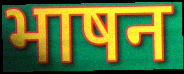
भाषन